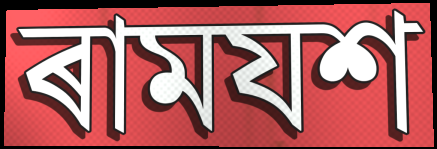
ৰামযশ